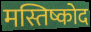
मस्तिष्कोद